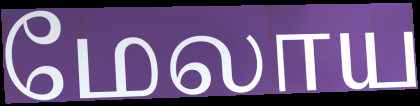
மேலாய